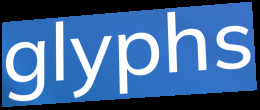
glyphs